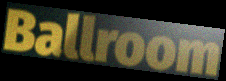
Ballroom